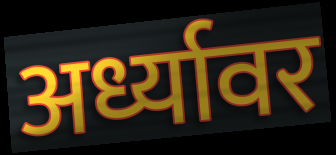
अर्ध्यावर